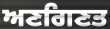
ਅਣਗਿਣਤ